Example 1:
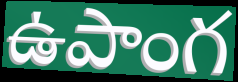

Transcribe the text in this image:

ఉపాంగ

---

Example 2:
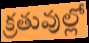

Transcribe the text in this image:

క్రతువుల్లో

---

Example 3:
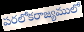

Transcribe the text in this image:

పరలోకరాజ్యములో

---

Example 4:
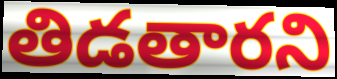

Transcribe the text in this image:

తిడతారని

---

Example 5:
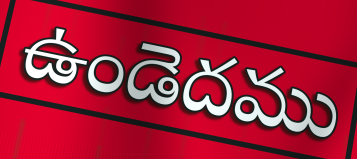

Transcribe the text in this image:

ఉండెదము